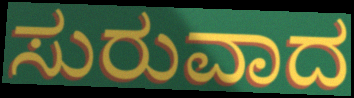
ಸುರುವಾದ